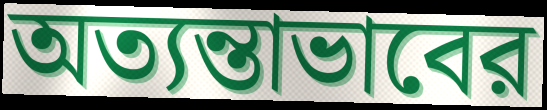
অত্যন্তাভাবের